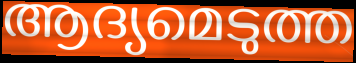
ആദ്യമെടുത്ത